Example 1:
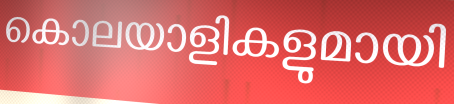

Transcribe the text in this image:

കൊലയാളികളുമായി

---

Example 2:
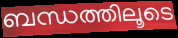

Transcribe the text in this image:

ബന്ധത്തിലൂടെ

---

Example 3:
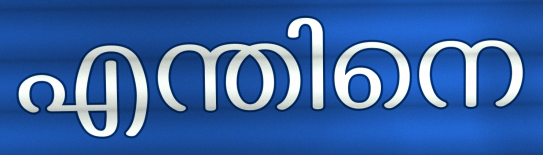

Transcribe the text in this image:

എന്തിനെ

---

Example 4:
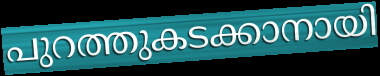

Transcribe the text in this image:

പുറത്തുകടക്കാനായി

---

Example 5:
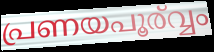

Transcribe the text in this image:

പ്രണയപൂര്വ്വം